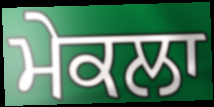
ਮੇਕਲਾ